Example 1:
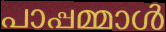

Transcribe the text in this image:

പാപ്പമ്മാൾ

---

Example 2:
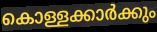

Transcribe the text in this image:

കൊള്ളക്കാർക്കും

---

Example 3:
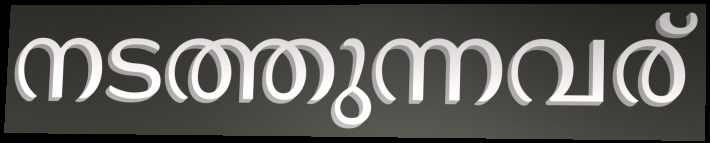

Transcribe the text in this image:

നടത്തുന്നവര്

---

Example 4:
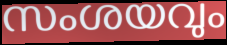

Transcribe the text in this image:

സംശയവും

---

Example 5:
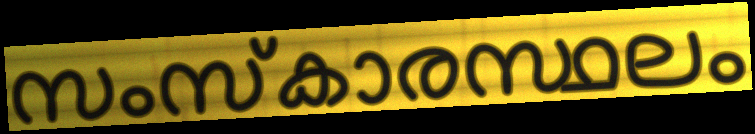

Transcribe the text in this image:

സംസ്കാരസ്ഥലം